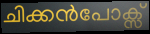
ചിക്കൻപോക്സ്